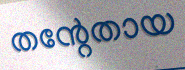
തന്റേതായ